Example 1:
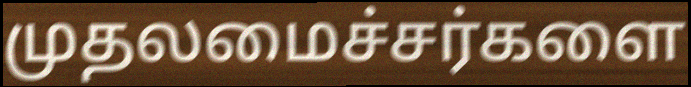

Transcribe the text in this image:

முதலமைச்சர்களை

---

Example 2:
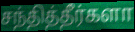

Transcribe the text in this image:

சந்தித்தீர்களா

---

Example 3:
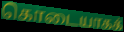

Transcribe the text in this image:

கொடையாகக்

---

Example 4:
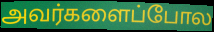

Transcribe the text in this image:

அவர்களைப்போல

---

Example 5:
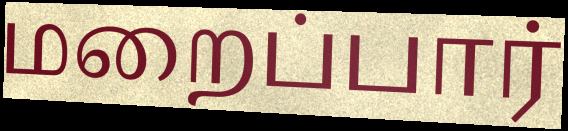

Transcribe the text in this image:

மறைப்பார்